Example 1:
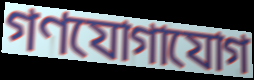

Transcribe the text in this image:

গণযোগাযোগ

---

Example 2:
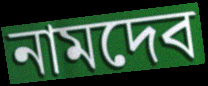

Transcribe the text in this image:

নামদেব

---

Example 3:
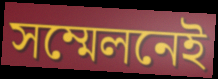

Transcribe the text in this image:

সম্মেলনেই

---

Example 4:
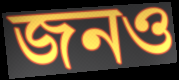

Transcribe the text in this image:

জনও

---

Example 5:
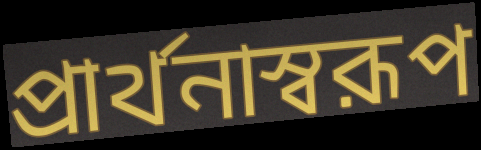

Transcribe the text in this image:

প্রার্থনাস্বরূপ